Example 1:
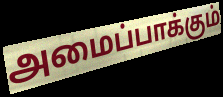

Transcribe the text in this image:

அமைப்பாக்கும்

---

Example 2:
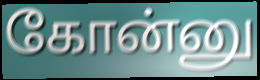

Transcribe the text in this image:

கோன்னு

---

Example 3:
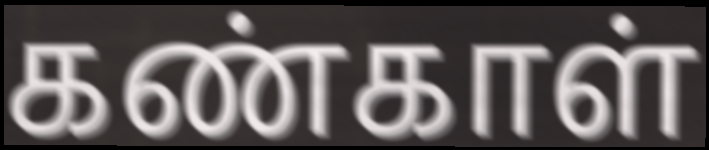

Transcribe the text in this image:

கண்காள்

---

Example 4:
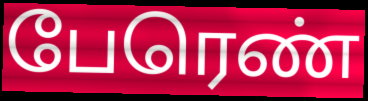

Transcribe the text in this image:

பேரெண்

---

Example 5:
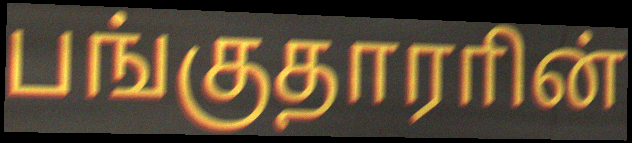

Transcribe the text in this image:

பங்குதாரரின்